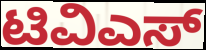
ಟಿವಿಎಸ್